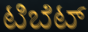
ಟಿಬೆಟ್